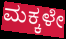
ಮಕ್ಕಳೇ